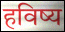
हविष्‍य